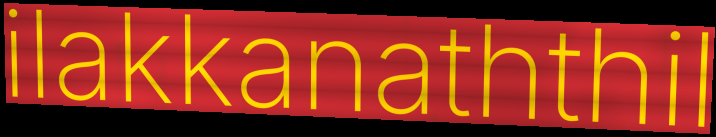
ilakkanaththil